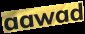
aawad